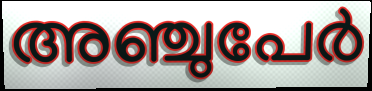
അഞ്ചുപേർ